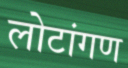
लोटांगण